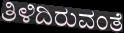
ತಿಳಿದಿರುವಂತೆ